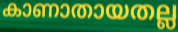
കാണാതായതല്ല